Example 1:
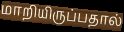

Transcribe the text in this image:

மாறியிருப்பதால்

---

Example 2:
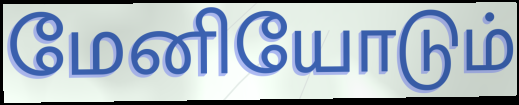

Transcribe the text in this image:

மேனியோடும்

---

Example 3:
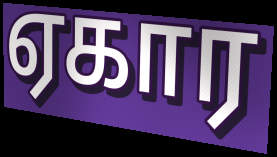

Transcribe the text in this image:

ஏகார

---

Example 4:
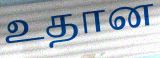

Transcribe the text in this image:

உதான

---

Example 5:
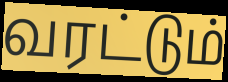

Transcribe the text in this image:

வரட்டும்